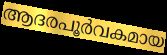
ആദരപൂർവകമായ